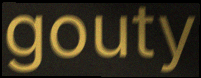
gouty